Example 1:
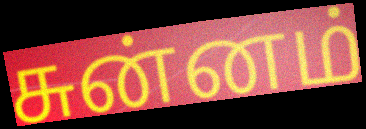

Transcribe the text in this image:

சுன்னம்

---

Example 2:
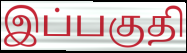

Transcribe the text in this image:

இப்பகுதி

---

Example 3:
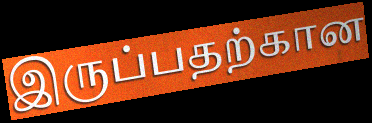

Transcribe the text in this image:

இருப்பதற்கான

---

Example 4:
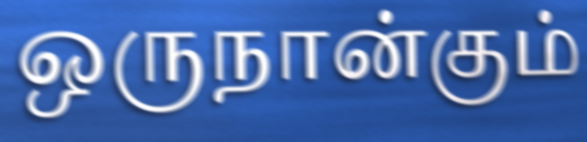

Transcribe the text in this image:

ஒருநான்கும்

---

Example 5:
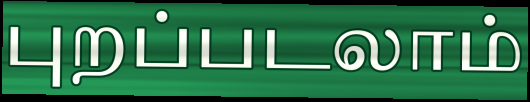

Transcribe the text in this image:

புறப்படலாம்